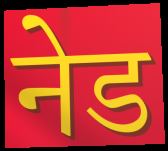
नेड